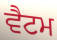
ਵੈਟਮ